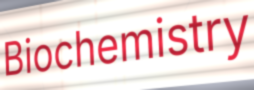
Biochemistry